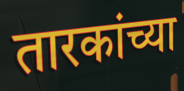
तारकांच्या